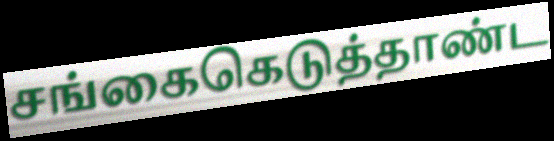
சங்கைகெடுத்தாண்ட